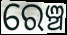
ରେଞ୍ଚ